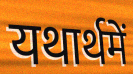
यथार्थमें